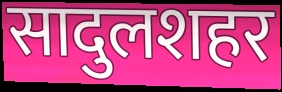
सादुलशहर